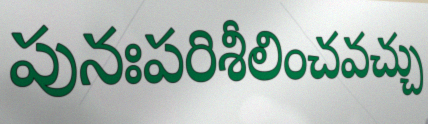
పునఃపరిశీలించవచ్చు